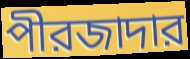
পীরজাদার